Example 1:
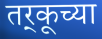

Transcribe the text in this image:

तर्कूच्या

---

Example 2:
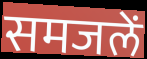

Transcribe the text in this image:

समजलें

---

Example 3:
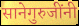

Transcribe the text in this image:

सानेगुरुजींनी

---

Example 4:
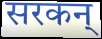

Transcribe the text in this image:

सरकन्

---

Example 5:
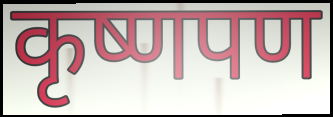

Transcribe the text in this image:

कृष्णपण